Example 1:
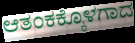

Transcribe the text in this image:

ಆತಂಕಕ್ಕೊಳಗಾದ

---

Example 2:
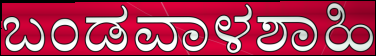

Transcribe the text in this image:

ಬಂಡವಾಳಶಾಹಿ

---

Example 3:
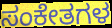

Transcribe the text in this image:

ಸಂಕೇತಗಳ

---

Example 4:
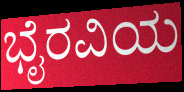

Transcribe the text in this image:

ಭೈರವಿಯ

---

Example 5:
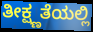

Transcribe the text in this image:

ತೀಕ್ಷ್ಣತೆಯಲ್ಲಿ